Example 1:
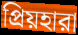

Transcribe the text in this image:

প্রিয়হারা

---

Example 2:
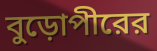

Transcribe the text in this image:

বুড়োপীরের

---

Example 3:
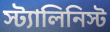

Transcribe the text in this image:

স্ট্যালিনিস্ট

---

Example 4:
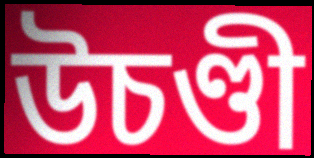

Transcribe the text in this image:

উচণ্ডী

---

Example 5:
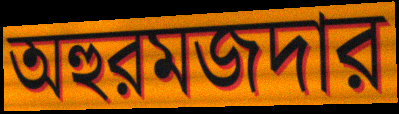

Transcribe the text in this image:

অহুরমজদার